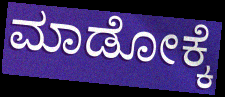
ಮಾಡೋಕ್ಕೆ